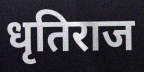
धृतिराज